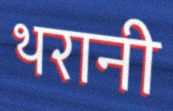
थरानी